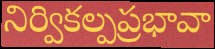
నిర్వికల్పప్రభావా